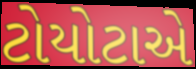
ટોયોટાએ